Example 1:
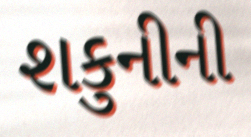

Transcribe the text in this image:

શકુનીની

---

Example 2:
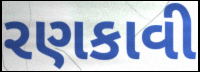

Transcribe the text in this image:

રણકાવી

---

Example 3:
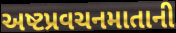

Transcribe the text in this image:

અષ્ટપ્રવચનમાતાની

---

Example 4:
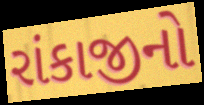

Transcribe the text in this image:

રાંકાજીનો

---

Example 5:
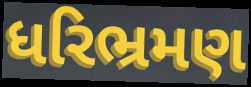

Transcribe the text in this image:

ધરિભ્રમણ